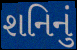
શનિનું